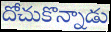
దోచుకొన్నాడు